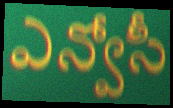
ఎన్వోసీ